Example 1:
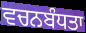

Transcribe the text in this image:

ਵਚਨਬੰਧਤਾ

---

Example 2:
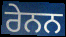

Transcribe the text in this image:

ਰੇਨਨ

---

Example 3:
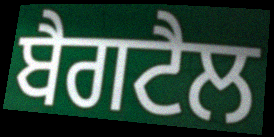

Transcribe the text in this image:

ਬੈਗਟੈਲ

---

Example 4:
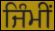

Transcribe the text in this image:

ਜਿੰਮੀਂ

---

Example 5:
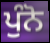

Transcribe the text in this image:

ਪੁੰਨੋ